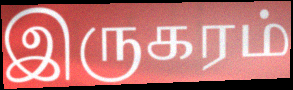
இருகரம்